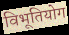
विभूतियोग